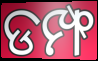
ଡମ୍ଫ